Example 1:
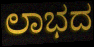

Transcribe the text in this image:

ಲಾಭದ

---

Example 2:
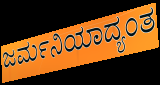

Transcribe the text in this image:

ಜರ್ಮನಿಯಾದ್ಯಂತ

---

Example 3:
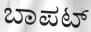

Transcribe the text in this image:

ಬಾಪಟ್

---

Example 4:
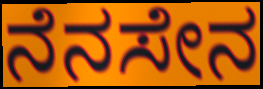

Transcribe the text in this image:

ನೆನಸೇನ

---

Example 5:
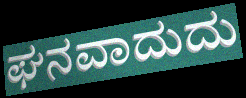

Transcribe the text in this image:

ಘನವಾದುದು